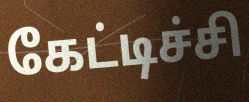
கேட்டிச்சி